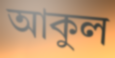
আকুল